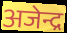
अजेन्द्र